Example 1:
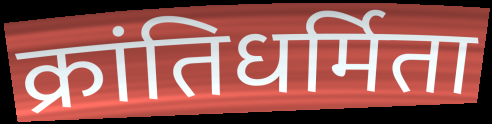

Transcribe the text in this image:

क्रांतिधर्मिता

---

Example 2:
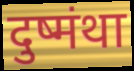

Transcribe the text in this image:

दुष्मंथा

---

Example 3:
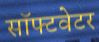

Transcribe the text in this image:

सॉफ्टवेटर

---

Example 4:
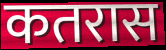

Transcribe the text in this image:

कतरास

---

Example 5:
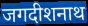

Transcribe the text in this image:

जगदीशनाथ